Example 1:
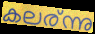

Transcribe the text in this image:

കലര്ന്നു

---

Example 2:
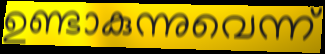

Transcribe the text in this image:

ഉണ്ടാകുന്നുവെന്ന്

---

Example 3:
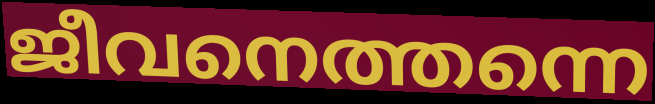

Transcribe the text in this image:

ജീവനെത്തന്നെ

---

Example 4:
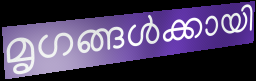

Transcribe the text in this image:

മൃഗങ്ങൾക്കായി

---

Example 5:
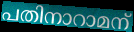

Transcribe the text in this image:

പതിനാറാമന്